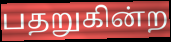
பதறுகின்ற